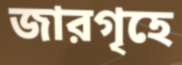
জারগৃহে